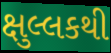
ક્ષુલ્લકથી